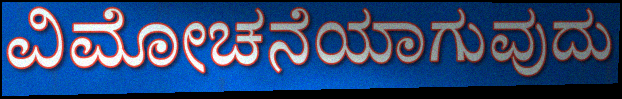
ವಿಮೋಚನೆಯಾಗುವುದು